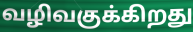
வழிவகுக்கிறது